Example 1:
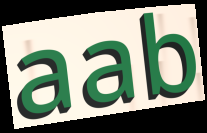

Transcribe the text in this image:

aab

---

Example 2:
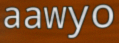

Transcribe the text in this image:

aawyo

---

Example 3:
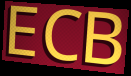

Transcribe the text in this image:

ECB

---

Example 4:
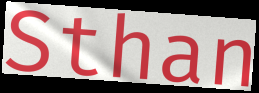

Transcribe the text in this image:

Sthan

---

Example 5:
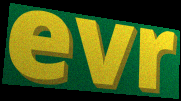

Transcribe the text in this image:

evr